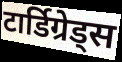
टार्डिग्रेड्स